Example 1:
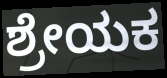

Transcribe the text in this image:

ಶ್ರೇಯಕ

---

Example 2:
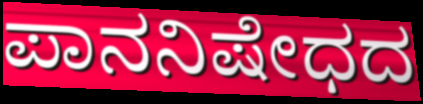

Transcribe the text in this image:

ಪಾನನಿಷೇಧದ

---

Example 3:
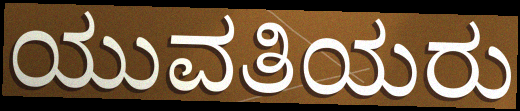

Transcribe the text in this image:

ಯುವತಿಯರು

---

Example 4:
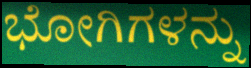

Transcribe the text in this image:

ಭೋಗಿಗಳನ್ನು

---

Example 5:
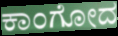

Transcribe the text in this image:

ಕಾಂಗೋದ